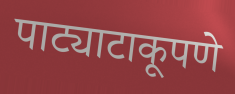
पाट्याटाकूपणे